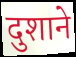
दुशाने